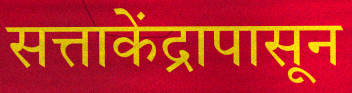
सत्ताकेंद्रापासून